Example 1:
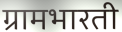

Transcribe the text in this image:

ग्रामभारती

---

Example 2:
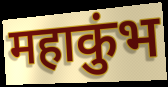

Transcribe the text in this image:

महाकुंभ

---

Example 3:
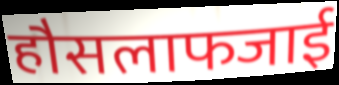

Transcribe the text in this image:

हौसलाफजाई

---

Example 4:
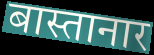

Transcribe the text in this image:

बास्तानार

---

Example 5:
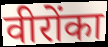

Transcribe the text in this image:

वीरोंका